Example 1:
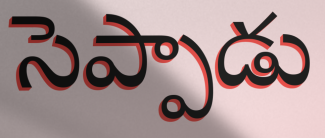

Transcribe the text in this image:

సెప్పాడు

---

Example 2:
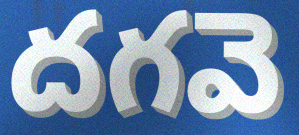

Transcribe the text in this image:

దగవె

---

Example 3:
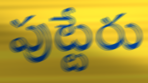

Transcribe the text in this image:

పుట్టేరు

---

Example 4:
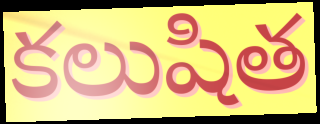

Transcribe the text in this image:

కలుషిత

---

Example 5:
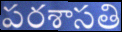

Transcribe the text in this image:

పరశాసతి